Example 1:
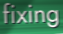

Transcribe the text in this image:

fixing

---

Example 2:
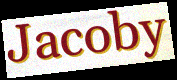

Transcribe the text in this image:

Jacoby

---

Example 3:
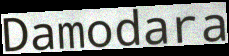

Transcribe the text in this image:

Damodara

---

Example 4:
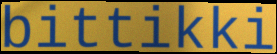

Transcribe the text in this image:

bittikki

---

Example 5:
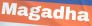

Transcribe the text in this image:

Magadha